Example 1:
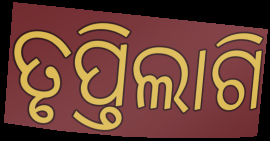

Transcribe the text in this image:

ତୃପ୍ତିଲାଗି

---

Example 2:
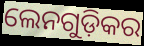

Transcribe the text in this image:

ଲେନଗୁଡ଼ିକର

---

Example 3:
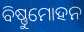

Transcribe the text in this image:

ବିଷ୍ଣୁମୋହନ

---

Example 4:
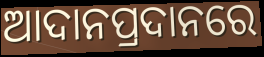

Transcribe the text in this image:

ଆଦାନପ୍ରଦାନରେ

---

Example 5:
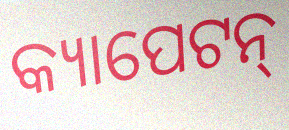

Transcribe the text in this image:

କ୍ୟାପେଟନ୍